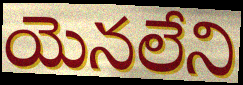
యెనలేని